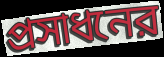
প্রসাধনের